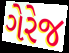
ગેરેજ